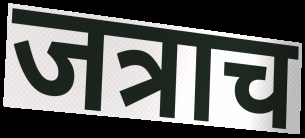
जत्राच